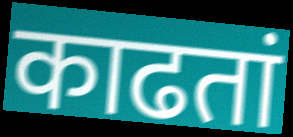
काढतां